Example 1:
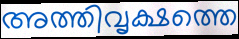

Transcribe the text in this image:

അത്തിവൃക്ഷത്തെ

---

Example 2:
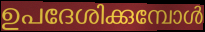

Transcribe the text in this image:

ഉപദേശിക്കുമ്പോൾ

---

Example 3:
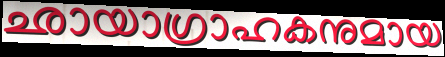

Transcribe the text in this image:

ഛായാഗ്രാഹകനുമായ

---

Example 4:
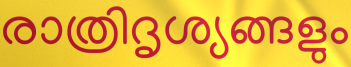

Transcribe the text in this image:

രാത്രിദൃശ്യങ്ങളും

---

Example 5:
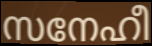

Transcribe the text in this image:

സനേഹീ